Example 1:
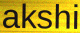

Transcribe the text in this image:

akshi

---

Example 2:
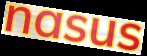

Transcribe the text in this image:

nasus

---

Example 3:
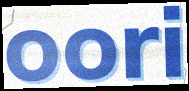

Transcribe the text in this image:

oori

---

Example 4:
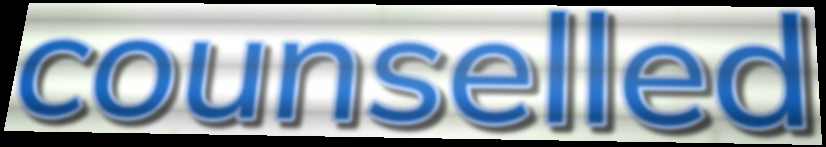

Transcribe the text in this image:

counselled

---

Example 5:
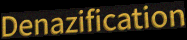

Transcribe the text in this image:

Denazification